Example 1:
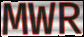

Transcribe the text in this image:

MWR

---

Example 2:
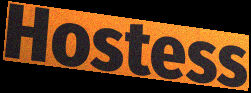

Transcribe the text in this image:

Hostess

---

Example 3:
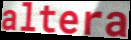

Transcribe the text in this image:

altera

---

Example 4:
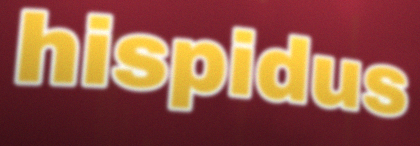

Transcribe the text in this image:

hispidus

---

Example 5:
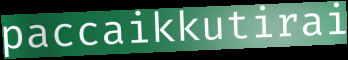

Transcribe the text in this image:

paccaikkutirai